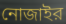
নোজাইর